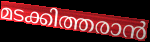
മടക്കിത്തരാൻ